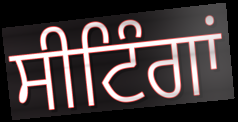
ਸੀਟਿੰਗਾਂ